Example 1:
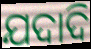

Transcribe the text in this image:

ଯଦାଦି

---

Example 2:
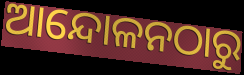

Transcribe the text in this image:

ଆନ୍ଦୋଳନଠାରୁ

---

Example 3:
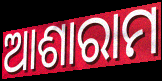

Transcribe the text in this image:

ଆଶାରାମ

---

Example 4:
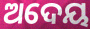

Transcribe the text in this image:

ଅଦେୟ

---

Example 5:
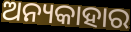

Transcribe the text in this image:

ଅନ୍ୟକାହାର